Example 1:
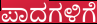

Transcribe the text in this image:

ಪಾದಗಳಿಗೆ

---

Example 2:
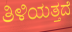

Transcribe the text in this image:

ತಿಳಿಯತ್ತದೆ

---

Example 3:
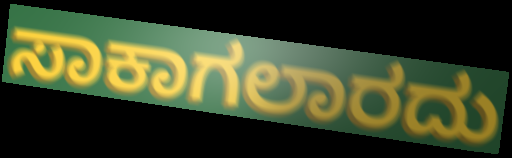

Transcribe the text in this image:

ಸಾಕಾಗಲಾರದು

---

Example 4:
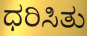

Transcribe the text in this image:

ಧರಿಸಿತು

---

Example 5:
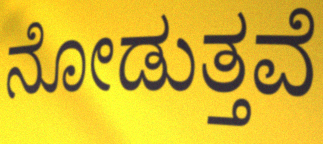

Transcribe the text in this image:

ನೋಡುತ್ತವೆ